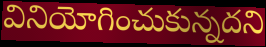
వినియోగించుకున్నదని